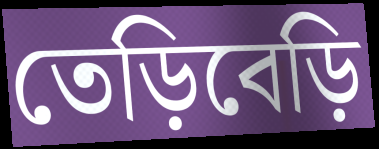
তেড়িবেড়ি